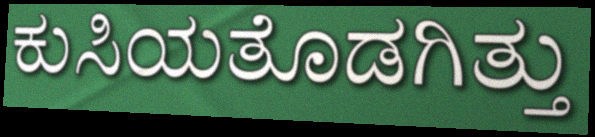
ಕುಸಿಯತೊಡಗಿತ್ತು